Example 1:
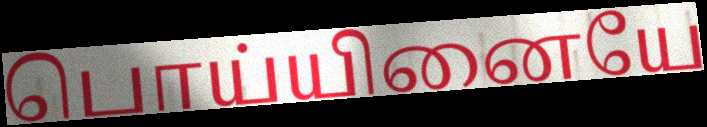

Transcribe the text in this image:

பொய்யினையே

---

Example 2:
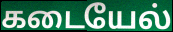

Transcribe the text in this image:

கடையேல்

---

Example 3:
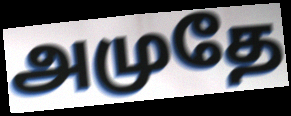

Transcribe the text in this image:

அமுதே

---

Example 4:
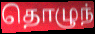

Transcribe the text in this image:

தொழுந்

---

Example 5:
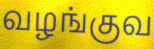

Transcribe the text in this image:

வழங்குவ